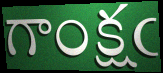
గాంక్షఁ